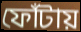
ফোঁটায়